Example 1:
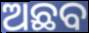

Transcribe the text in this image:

ଅଛବ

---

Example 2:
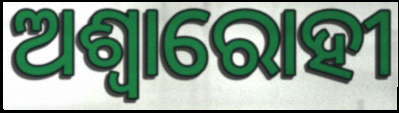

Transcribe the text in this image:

ଅଶ୍ଵାରୋହୀ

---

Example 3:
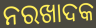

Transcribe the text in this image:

ନରଖାଦକ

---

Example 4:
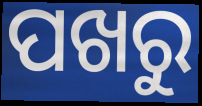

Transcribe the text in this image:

ପଖରୁ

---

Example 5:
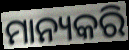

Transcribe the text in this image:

ମାନ୍ୟକରି